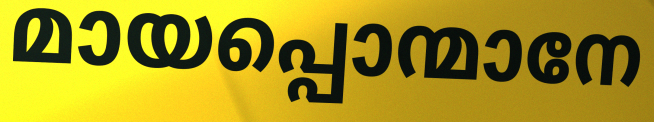
മായപ്പൊന്മാനേ